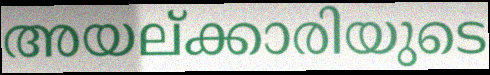
അയല്ക്കാരിയുടെ